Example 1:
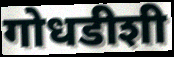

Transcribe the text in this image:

गोधडीशी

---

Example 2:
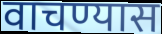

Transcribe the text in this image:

वाचण्यास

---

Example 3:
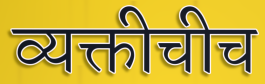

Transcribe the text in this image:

व्यक्तीचीच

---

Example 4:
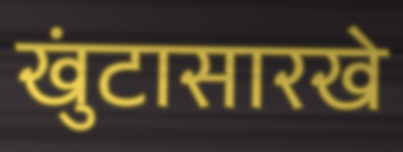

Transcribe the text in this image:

खुंटासारखे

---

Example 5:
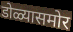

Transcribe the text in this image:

डोळ्यासमोर